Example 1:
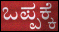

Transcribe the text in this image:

ಒಪ್ಪಕ್ಕೆ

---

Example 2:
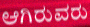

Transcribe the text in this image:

ಆಗಿರುವರು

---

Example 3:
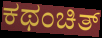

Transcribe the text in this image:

ಕಥಂಚಿತ್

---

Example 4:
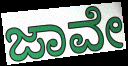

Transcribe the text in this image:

ಜಾವೇ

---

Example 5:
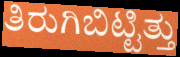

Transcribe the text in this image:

ತಿರುಗಿಬಿಟ್ಟಿತ್ತು